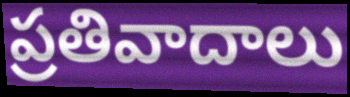
ప్రతివాదాలు